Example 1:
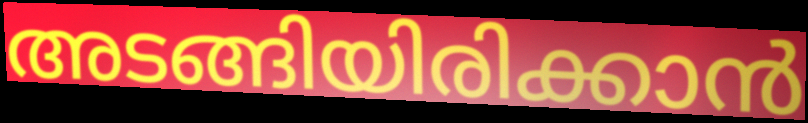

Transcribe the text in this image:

അടങ്ങിയിരിക്കാൻ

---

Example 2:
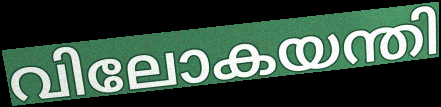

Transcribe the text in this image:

വിലോകയന്തി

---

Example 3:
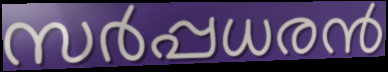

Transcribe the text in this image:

സർപ്പധരൻ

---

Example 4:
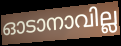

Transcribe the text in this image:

ഓടാനാവില്ല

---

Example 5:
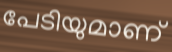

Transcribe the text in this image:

പേടിയുമാണ്